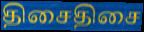
திசைதிசை